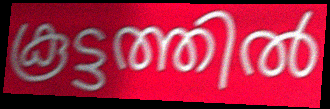
കൂട്ടത്തിൽ